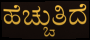
ಹೆಚ್ಚುತಿದೆ